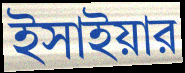
ইসাইয়ার